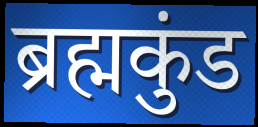
ब्रह्मकुंड